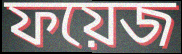
ফয়েজ